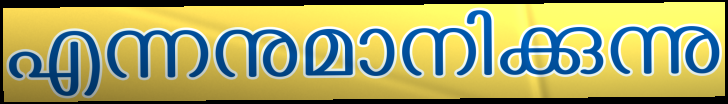
എന്നനുമാനിക്കുന്നു